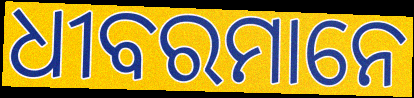
ଧୀବରମାନେ